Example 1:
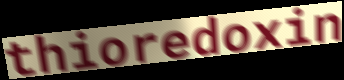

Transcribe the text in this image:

thioredoxin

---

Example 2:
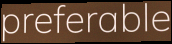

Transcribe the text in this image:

preferable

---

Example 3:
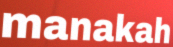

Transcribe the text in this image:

manakah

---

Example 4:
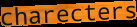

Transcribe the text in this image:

charecters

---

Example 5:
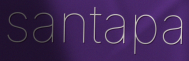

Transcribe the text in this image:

santapa